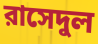
রাসেদুল